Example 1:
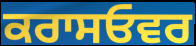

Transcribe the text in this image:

ਕਰਾਸਓਵਰ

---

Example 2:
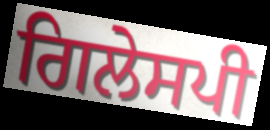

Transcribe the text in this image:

ਗਿਲੇਸਪੀ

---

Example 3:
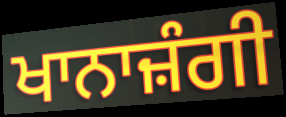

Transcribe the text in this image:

ਖਾਨਾਜ਼ੰਗੀ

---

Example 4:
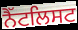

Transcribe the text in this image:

ਨੈੱਟਲਿਸਟ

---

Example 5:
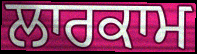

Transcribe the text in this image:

ਲਾਰਕਾਮ